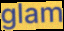
glam